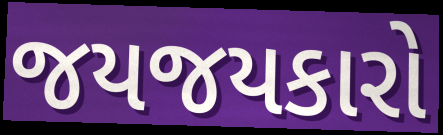
જયજયકારો